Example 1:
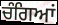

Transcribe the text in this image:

ਚੰਗਿਆਂ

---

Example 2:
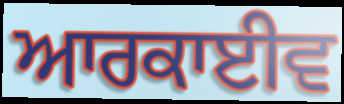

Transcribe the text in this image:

ਆਰਕਾਈਵ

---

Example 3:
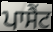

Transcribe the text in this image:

ਪਾਸੈਂਟ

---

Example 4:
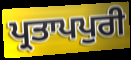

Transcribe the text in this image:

ਪ੍ਰਤਾਪਪੁਰੀ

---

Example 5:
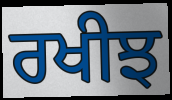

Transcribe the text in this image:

ਰਖੀਝ